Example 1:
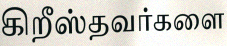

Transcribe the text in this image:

கிறீஸ்தவர்களை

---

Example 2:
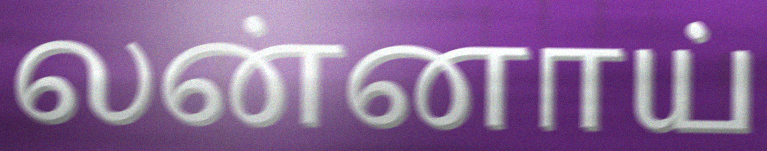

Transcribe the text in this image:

லன்னாய்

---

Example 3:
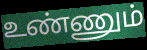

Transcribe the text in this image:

உண்ணும்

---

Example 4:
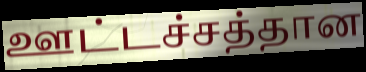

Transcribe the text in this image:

ஊட்டச்சத்தான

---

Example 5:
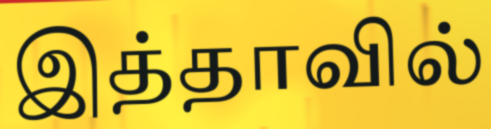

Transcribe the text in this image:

இத்தாவில்